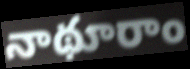
నాథూరాం